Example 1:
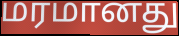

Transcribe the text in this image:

மரமானது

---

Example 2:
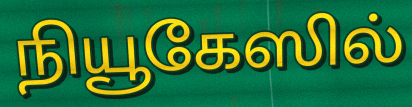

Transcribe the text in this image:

நியூகேஸில்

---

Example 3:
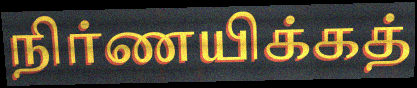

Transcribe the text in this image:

நிர்ணயிக்கத்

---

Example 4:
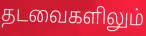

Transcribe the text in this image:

தடவைகளிலும்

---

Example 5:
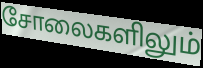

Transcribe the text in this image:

சோலைகளிலும்